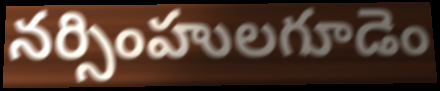
నర్సింహులగూడెం